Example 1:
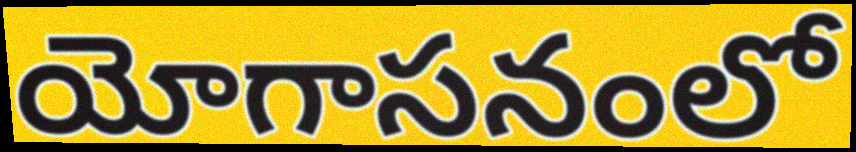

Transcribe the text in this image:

యోగాసనంలో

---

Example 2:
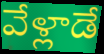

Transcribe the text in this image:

వేళ్లాడే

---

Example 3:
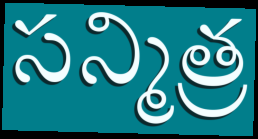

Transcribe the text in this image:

సన్మిత్ర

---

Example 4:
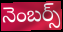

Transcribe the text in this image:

నెంబర్స్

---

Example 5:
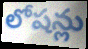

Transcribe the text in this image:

లోషన్లు